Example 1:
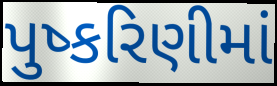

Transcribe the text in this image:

પુષ્કરિણીમાં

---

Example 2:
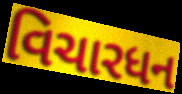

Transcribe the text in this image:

વિચારધન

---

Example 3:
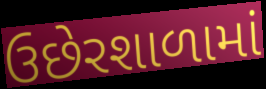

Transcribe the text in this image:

ઉછેરશાળામાં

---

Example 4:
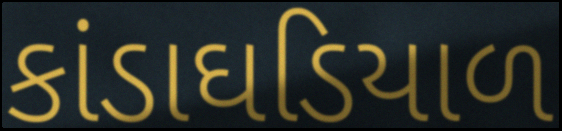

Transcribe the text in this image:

કાંડાઘડિયાળ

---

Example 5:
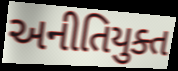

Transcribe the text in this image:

અનીતિયુક્ત